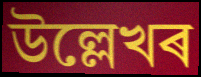
উল্লেখৰ